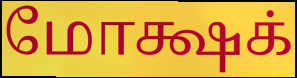
மோக்ஷக்